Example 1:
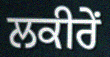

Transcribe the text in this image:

ਲਕੀਰੇਂ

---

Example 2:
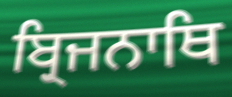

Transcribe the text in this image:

ਬ੍ਰਿਜਨਾਥਿ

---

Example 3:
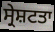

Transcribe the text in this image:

ਸ੍ਰੇਸ਼ਟਤਾ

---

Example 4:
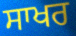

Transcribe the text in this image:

ਸਾਖਰ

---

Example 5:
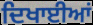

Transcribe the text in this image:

ਦਿਖਾਈਆਂ